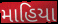
માહિયા